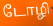
டோழி